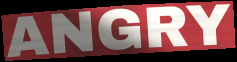
ANGRY